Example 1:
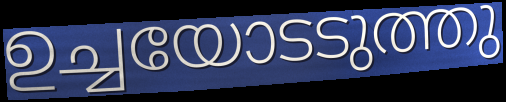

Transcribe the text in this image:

ഉച്ചയോടടുത്തു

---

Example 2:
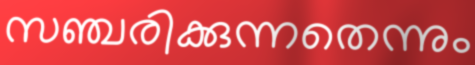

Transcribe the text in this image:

സഞ്ചരിക്കുന്നതെന്നും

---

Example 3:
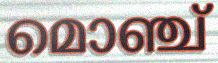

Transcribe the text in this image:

മൊഞ്ച്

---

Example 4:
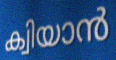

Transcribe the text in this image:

ക്വിയാൻ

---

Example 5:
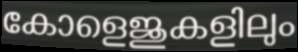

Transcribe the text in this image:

കോളെജുകളിലും